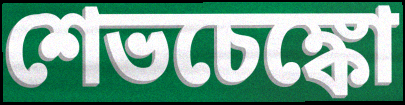
শেভচেঙ্কো